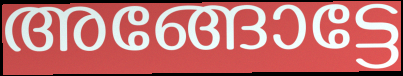
അങ്ങോട്ടേ